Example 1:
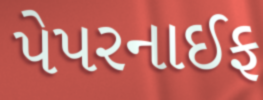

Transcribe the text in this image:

પેપરનાઈફ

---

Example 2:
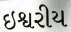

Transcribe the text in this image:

ઇશ્વરીય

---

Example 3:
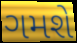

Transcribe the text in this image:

ગમશે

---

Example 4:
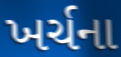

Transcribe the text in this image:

ખર્ચના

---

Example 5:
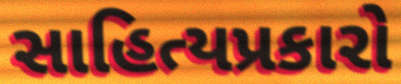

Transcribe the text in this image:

સાહિત્યપ્રકારો